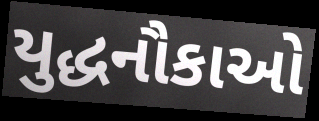
યુદ્ધનૌકાઓ